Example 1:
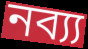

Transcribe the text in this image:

নব্য্য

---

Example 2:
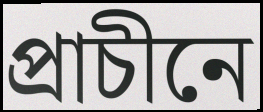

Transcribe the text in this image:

প্ৰাচীনে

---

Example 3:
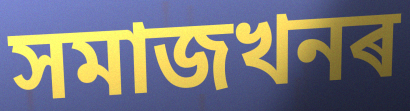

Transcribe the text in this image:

সমাজখনৰ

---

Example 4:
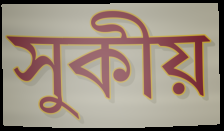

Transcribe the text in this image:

সুকীয়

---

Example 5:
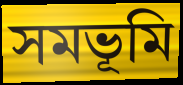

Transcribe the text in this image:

সমভূমি